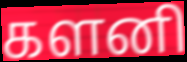
களனி